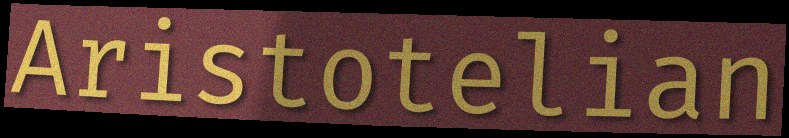
Aristotelian